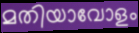
മതിയാവോളം